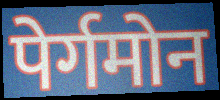
पेर्गमोन